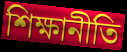
শিক্ষানীতি